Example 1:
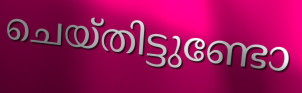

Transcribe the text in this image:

ചെയ്തിട്ടുണ്ടോ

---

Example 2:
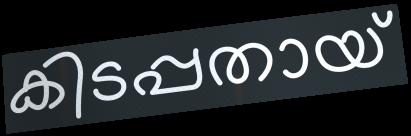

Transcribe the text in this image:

കിടപ്പതായ്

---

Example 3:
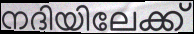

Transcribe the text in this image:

നദിയിലേക്ക്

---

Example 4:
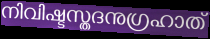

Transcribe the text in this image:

നിവിഷ്ടസ്തദനുഗ്രഹാത്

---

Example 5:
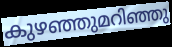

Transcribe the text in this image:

കുഴഞ്ഞുമറിഞ്ഞു